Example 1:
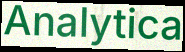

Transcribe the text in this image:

Analytica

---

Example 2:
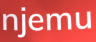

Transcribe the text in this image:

njemu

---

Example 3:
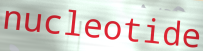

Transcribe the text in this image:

nucleotide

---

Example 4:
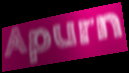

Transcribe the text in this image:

Apurn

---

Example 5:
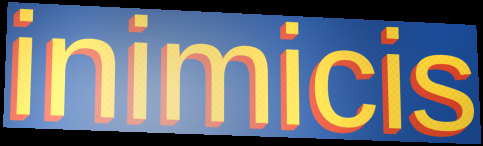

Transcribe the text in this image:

inimicis